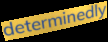
determinedly